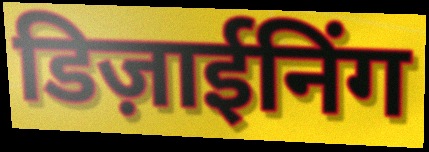
डिज़ाईनिंग